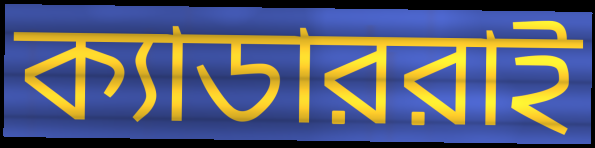
ক্যাডাররাই